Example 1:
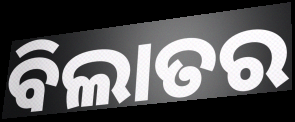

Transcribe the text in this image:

ବିଲାତର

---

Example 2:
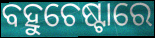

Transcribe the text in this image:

ବହୁଚେଷ୍ଟାରେ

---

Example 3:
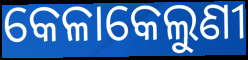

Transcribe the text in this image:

କେଳାକେଲୁଣୀ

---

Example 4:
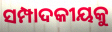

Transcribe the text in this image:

ସମ୍ପାଦକୀୟକୁ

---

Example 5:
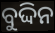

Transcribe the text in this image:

ବୁଦ୍ଦିନ